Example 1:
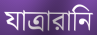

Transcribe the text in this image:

যাত্রারানি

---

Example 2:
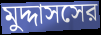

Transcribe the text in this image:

মুদ্দাসসের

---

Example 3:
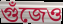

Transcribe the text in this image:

গুঁজেও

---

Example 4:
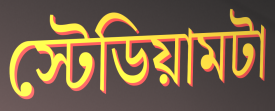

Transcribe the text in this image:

স্টেডিয়ামটা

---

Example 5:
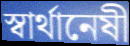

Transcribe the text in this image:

স্বার্থানেষী